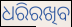
ଧରିରଖିବ